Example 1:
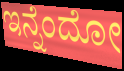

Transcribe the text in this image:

ಇನ್ನೆಂದೋ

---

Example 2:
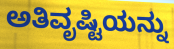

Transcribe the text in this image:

ಅತಿವೃಷ್ಟಿಯನ್ನು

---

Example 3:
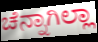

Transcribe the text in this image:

ಚೆನ್ನಾಗಿಲ್ಲಾ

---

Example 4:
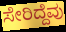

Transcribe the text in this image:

ಸೇರಿದ್ದೆವು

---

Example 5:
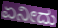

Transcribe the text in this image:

ಏನೀದು